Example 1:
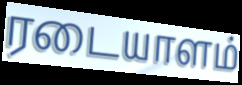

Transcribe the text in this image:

ரடையாளம்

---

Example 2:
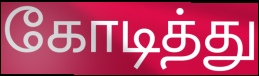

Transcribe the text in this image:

கோடித்து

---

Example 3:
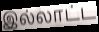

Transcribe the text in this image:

இல்லாட்ட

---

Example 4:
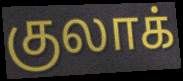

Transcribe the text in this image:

குலாக்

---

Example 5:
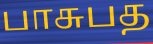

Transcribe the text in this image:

பாசுபத